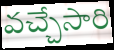
వచ్చేసారి